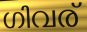
ഗിവര്